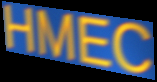
HMEC